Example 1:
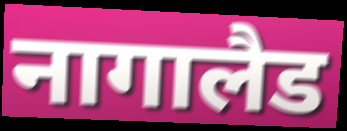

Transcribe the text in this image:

नागालैड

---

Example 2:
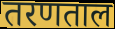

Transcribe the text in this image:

तरणताल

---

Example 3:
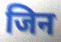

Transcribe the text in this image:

जिन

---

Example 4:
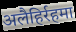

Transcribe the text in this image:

अलैहिर्रहमा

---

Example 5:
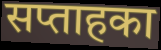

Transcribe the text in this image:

सप्ताहका